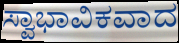
ಸ್ವಾಭಾವಿಕವಾದ